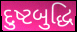
દુષ્ટબુદ્ધિ